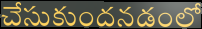
చేసుకుందనడంలో